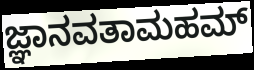
ಜ್ಞಾನವತಾಮಹಮ್